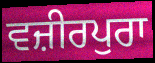
ਵਜ਼ੀਰਪੁਰਾ